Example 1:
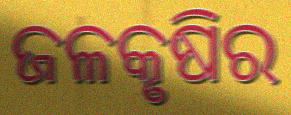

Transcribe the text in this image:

ଜଳକୃଷିର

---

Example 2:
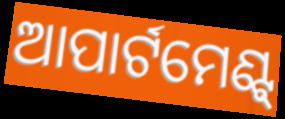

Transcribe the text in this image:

ଆପାର୍ଟମେଣ୍ଟ୍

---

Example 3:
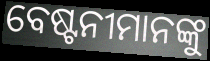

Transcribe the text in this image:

ବେଷ୍ଟନୀମାନଙ୍କୁ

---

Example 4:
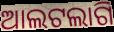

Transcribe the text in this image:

ଆଲଟଲାଗି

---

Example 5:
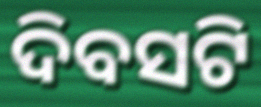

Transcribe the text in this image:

ଦିବସଟି